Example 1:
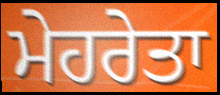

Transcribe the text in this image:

ਮੇਹਰੇਤਾ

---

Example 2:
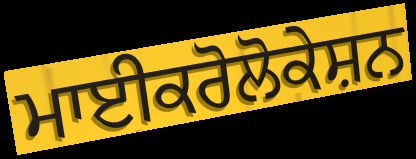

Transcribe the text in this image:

ਮਾਈਕਰੋਲੋਕੇਸ਼ਨ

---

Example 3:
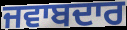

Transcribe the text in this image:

ਜਵਾਬਦਾਰ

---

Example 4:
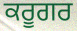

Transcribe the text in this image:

ਕਰੂਗਰ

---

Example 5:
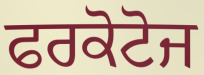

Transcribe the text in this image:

ਫਰਕੋਟੋਜ